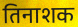
तिनाशक